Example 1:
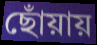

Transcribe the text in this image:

ছোঁয়ায়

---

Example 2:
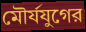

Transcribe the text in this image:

মৌর্যযুগের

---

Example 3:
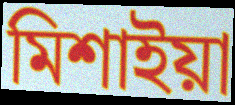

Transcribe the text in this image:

মিশাইয়া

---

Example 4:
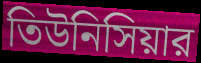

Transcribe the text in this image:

তিউনিসিয়ার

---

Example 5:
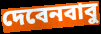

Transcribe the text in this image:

দেবেনবাবু